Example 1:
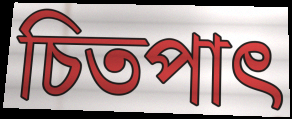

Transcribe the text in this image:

চিতপাৎ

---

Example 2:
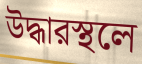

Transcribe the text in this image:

উদ্ধারস্থলে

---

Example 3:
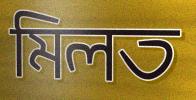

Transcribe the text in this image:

মিলত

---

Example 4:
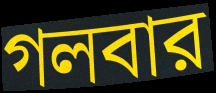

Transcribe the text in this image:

গলবার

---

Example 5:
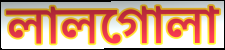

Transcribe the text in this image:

লালগোলা